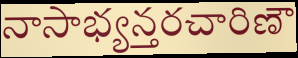
నాసాభ్యన్తరచారిణౌ